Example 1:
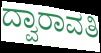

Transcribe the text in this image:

ದ್ವಾರಾವತಿ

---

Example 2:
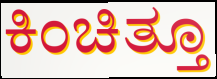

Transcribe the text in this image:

ಕಿಂಚಿತ್ತೂ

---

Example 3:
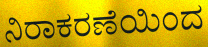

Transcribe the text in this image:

ನಿರಾಕರಣೆಯಿಂದ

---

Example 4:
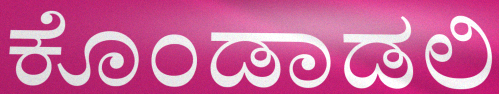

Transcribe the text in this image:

ಕೊಂಡಾಡಲಿ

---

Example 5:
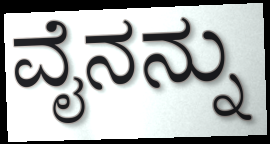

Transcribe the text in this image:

ವೈನನ್ನು